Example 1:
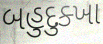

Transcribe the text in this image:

બહુદુક્ખા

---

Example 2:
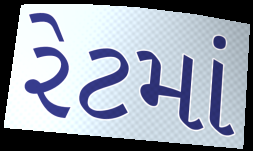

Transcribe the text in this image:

રેટમાં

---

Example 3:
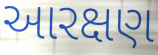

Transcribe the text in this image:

આરક્ષણ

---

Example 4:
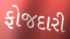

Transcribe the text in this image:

ફોજદારી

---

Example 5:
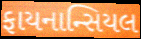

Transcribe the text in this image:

ફાયનાન્સિયલ